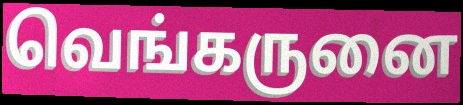
வெங்கருனை